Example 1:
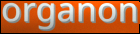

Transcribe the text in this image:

organon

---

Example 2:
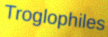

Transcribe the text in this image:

Troglophiles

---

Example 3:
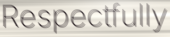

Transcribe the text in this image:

Respectfully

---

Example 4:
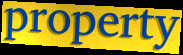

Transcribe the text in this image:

property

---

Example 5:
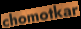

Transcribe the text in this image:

chomotkar